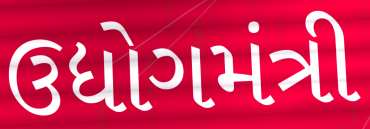
ઉદ્યોગમંત્રી